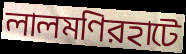
লালমণিরহাটে